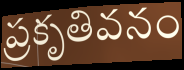
ప్రకృతివనం